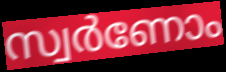
സ്വർണോം